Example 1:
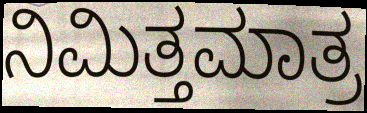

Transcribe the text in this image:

ನಿಮಿತ್ತಮಾತ್ರ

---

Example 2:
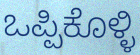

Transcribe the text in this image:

ಒಪ್ಪಿಕೊಳ್ಳಿ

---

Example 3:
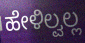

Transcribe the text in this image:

ಹೇಳಿಲ್ವಲ್ಲ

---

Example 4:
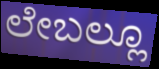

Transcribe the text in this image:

ಲೇಬಲ್ಲೂ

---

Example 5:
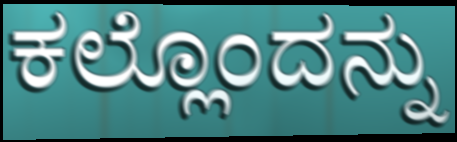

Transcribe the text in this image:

ಕಲ್ಲೊಂದನ್ನು